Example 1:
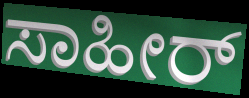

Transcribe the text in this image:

ಸಾಹೀರ್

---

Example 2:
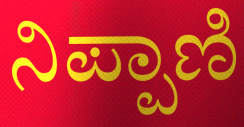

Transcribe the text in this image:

ನಿಪ್ಪಾಣಿ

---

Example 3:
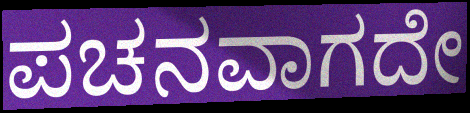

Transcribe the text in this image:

ಪಚನವಾಗದೇ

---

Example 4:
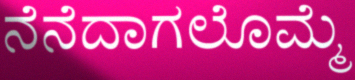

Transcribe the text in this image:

ನೆನೆದಾಗಲೊಮ್ಮೆ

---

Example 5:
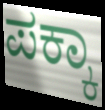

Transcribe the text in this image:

ಪಕ್ಕಾ